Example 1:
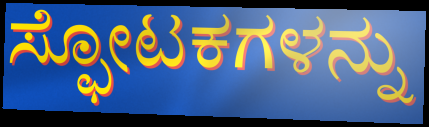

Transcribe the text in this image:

ಸ್ಫೋಟಕಗಳನ್ನು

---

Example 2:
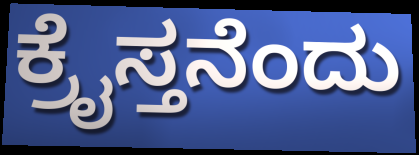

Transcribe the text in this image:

ಕ್ರೈಸ್ತನೆಂದು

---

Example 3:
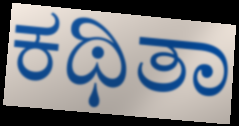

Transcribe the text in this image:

ಕಥಿತಾ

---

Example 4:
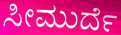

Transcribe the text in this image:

ಸೀಮುರ್ದೆ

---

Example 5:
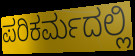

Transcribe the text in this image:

ಪರಿಕರ್ಮದಲ್ಲಿ